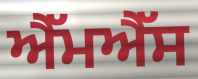
ਐੱਮਐੱਸ